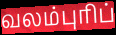
வலம்புரிப்